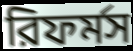
রিফর্মস